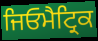
ਜਿਓਮੈਟ੍ਰਿਕ